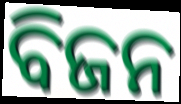
ବିଜନ